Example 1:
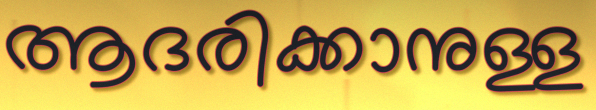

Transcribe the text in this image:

ആദരിക്കാനുള്ള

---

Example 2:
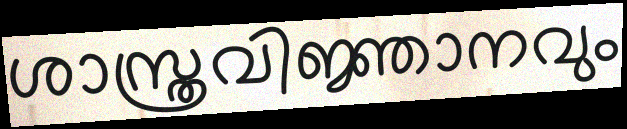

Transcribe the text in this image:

ശാസ്ത്രവിജ്ഞാനവും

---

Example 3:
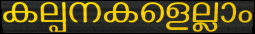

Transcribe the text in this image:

കല്പനകളെല്ലാം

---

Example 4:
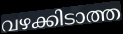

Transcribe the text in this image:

വഴക്കിടാത്ത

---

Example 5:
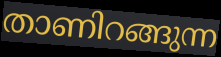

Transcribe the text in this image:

താണിറങ്ങുന്ന